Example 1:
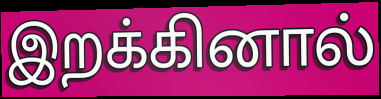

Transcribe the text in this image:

இறக்கினால்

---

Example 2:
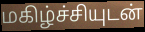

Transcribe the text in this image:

மகிழ்ச்சியுடன்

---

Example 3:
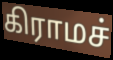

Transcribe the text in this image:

கிராமச்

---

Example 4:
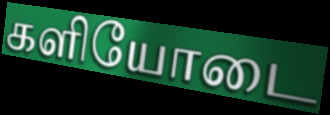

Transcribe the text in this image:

களியோடை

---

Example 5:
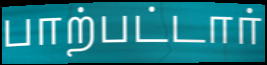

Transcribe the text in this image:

பாற்பட்டார்